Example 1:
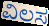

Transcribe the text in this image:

ವಿಲಸ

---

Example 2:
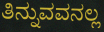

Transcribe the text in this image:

ತಿನ್ನುವವನಲ್ಲ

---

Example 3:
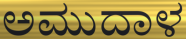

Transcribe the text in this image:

ಅಮುದಾಳ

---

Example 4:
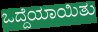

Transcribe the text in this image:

ಒದ್ದೆಯಾಯಿತು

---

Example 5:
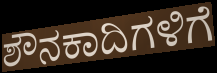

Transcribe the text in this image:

ಶೌನಕಾದಿಗಳಿಗೆ